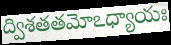
ద్విశతతమోఽధ్యాయః